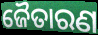
ଜୈତାରଣ